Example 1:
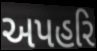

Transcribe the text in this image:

અપહરિ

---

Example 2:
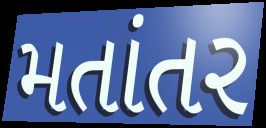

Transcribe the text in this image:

મતાંતર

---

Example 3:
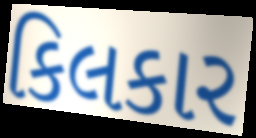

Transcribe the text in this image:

કિલકાર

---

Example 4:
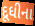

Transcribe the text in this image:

દૂધીના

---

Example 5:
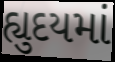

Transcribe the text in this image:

હ્યુદયમાં